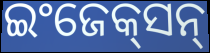
ଇଂଜେକ୍‌ସନ୍